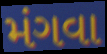
મંગવા